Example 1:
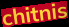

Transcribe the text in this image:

chitnis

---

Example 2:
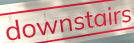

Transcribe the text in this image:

downstairs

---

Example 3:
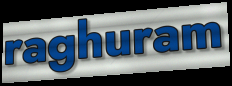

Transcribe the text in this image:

raghuram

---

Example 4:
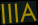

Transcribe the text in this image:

IIIA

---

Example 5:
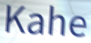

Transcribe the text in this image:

Kahe